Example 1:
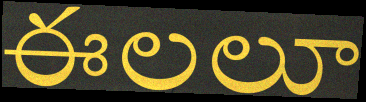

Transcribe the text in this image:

ఈలలూ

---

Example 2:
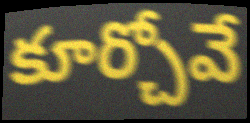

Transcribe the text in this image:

కూర్చోవే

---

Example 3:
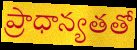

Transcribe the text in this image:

ప్రాధాన్యతతో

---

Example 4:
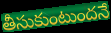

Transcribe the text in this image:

తీసుకుంటుందనే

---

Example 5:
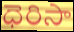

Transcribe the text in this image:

ధెరిసా